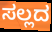
ಸಲ್ಲದ